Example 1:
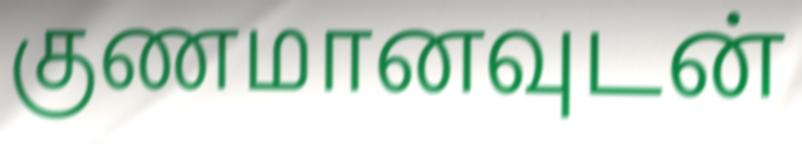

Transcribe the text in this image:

குணமானவுடன்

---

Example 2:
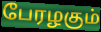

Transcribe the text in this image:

பேரழகும்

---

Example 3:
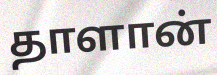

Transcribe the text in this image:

தாளான்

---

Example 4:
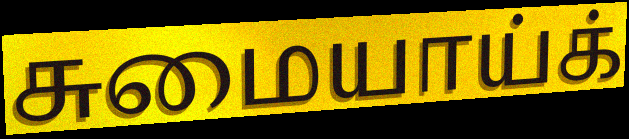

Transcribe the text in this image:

சுமையாய்க்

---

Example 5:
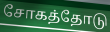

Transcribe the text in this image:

சோகத்தோடு